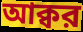
আক্বর